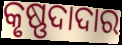
କୃଷ୍ଣଦାଦାର